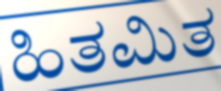
ಹಿತಮಿತ